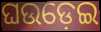
ଘଉଡ଼େଇ